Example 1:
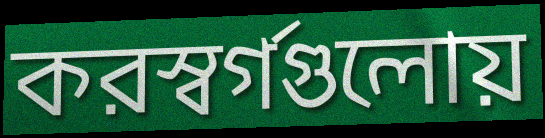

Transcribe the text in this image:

করস্বর্গগুলোয়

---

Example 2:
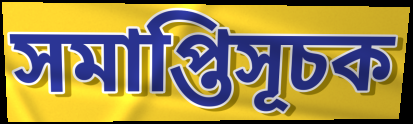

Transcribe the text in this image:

সমাপ্তিসূচক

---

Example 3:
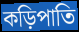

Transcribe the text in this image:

কড়িপাতি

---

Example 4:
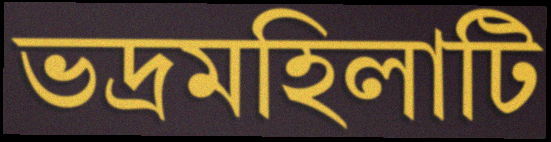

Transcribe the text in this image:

ভদ্রমহিলাটি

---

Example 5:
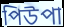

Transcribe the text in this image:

পিউপা